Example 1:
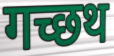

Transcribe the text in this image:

गच्छथ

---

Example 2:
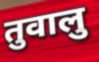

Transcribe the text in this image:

तुवालु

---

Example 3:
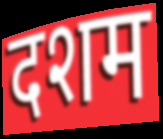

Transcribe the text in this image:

दशम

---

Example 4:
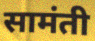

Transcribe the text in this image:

सामंती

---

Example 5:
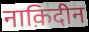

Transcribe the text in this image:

नाक़िदीन